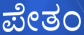
ಪೇತಂ